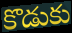
కొడుకు